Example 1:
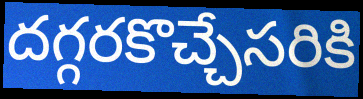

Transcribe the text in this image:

దగ్గరకొచ్చేసరికి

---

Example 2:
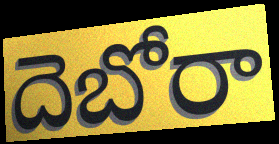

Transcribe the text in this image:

దెబోరా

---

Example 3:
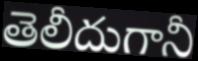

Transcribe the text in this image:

తెలీదుగానీ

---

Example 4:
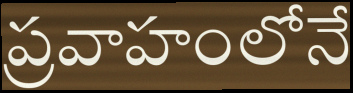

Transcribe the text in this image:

ప్రవాహంలోనే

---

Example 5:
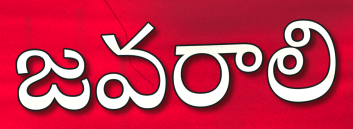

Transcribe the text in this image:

జవరాలి